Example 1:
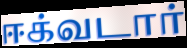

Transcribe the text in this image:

ஈக்வடார்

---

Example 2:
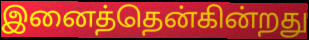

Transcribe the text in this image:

இனைத்தென்கின்றது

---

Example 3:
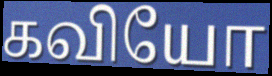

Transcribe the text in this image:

கவியோ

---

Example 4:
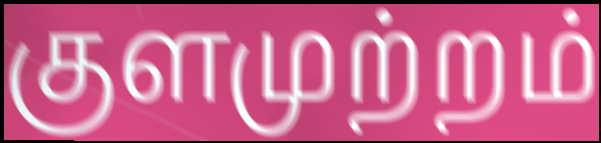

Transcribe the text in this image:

குளமுற்றம்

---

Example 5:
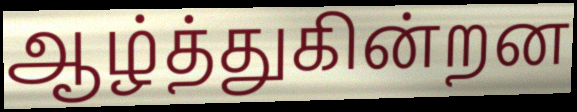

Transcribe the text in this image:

ஆழ்த்துகின்றன